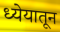
ध्येयातून